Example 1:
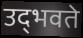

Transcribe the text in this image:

उद्भवते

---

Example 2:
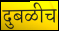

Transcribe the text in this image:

दुबळीच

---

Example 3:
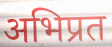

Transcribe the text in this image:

अभिप्रत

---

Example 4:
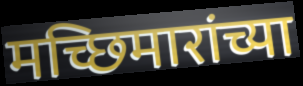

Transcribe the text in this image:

मच्छिमारांच्या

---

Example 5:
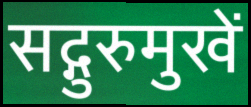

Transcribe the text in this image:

सद्गुरुमुखें